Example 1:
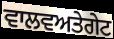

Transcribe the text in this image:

ਵਾਲਵਅਤੇਗੇਟ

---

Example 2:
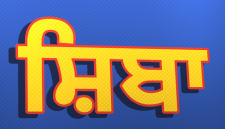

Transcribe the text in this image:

ਸ਼ਿਬਾ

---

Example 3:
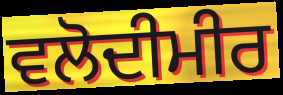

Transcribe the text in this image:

ਵਲੋਦੀਮੀਰ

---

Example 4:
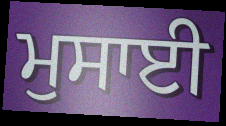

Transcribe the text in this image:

ਮੁਸਾਈ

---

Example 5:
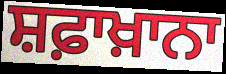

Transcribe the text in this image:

ਸ਼ਫ਼ਾਖ਼ਾਨਾ